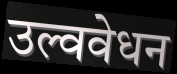
उल्ववेधन